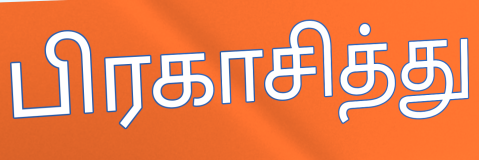
பிரகாசித்து